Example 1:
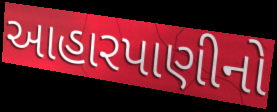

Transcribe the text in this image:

આહારપાણીનો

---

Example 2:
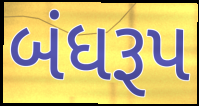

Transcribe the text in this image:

બંધરૂપ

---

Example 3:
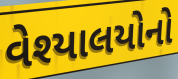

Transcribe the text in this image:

વેશ્યાલયોનો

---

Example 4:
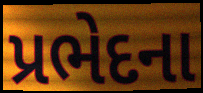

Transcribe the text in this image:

પ્રભેદના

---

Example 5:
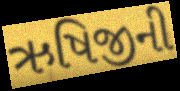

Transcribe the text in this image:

ઋષિજીની